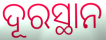
ଦୂରସ୍ଥାନ